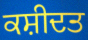
ਕਸ਼ੀਦਤ